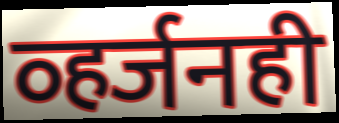
व्हर्जनही